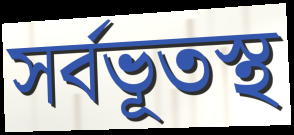
সর্বভূতস্থ